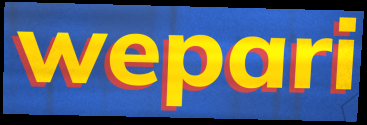
wepari